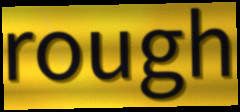
rough